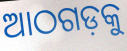
ଆଠଗଡ଼କୁ